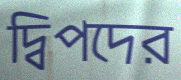
দ্বিপদের